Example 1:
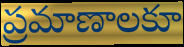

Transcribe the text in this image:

ప్రమాణాలకూ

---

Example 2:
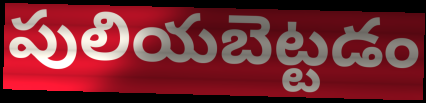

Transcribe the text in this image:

పులియబెట్టడం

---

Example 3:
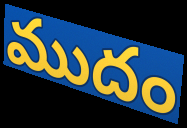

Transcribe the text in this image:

ముదం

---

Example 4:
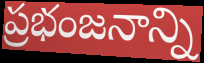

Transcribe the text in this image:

ప్రభంజనాన్ని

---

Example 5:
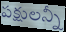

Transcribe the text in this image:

పక్షులన్నీ